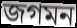
জগমন